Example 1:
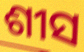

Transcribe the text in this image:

ଶୀସ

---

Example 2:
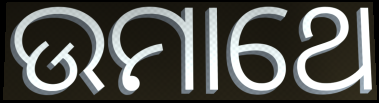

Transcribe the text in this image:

ଉମାଥେ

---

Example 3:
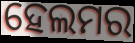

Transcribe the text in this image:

ହେଲମର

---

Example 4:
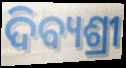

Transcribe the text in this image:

ଦିବ୍ୟଶ୍ରୀ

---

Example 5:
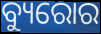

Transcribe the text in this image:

ବ୍ୟୁରୋର